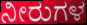
ನೀರುಗಳ